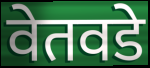
वेतवडे